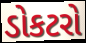
ડોકટરો